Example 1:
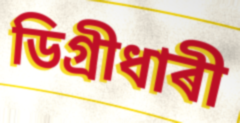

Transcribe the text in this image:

ডিগ্ৰীধাৰী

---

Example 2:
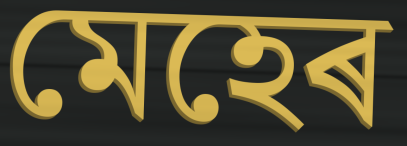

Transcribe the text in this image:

মেহেৰ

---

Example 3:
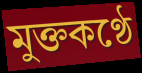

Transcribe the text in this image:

মুক্তকণ্ঠে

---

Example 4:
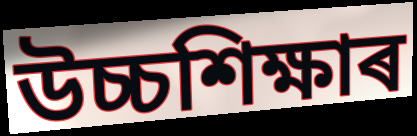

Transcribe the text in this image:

উচ্চশিক্ষাৰ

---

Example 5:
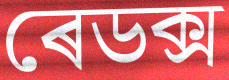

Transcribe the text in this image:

ৰেডক্স